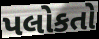
પલોકતો